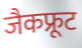
जैकफ्रूट